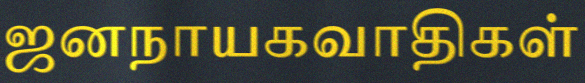
ஜனநாயகவாதிகள்